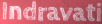
Indravati